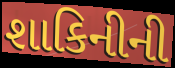
શાકિનીની